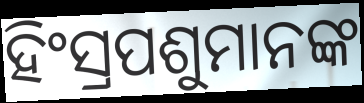
ହିଂସ୍ରପଶୁମାନଙ୍କ